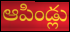
ఆపిండ్లు